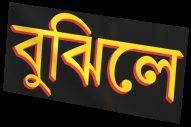
বুঝিলে